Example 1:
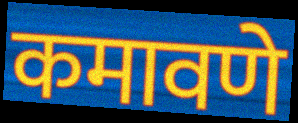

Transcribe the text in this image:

कमावणे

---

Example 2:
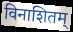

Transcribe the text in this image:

विनाशितम्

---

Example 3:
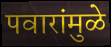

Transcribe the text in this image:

पवारांमुळे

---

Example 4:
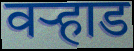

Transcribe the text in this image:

वर्‍हाड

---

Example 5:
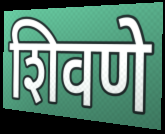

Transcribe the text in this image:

शिवणे